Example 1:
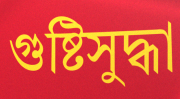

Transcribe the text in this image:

গুষ্টিসুদ্ধা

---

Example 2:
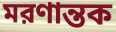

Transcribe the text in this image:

মরণান্তক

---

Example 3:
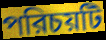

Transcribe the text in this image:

পরিচয়টি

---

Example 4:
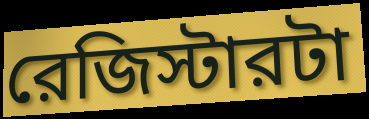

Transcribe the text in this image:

রেজিস্টারটা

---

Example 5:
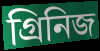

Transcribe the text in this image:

গ্রিনিজ